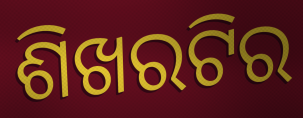
ଶିଖରଟିର